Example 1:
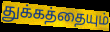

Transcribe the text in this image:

துக்கத்தையும்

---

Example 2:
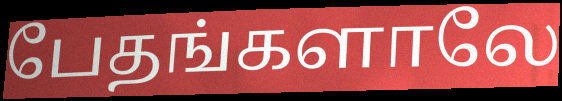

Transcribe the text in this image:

பேதங்களாலே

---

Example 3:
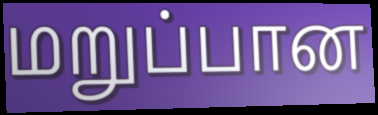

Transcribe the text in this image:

மறுப்பான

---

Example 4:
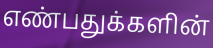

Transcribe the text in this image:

எண்பதுக்களின்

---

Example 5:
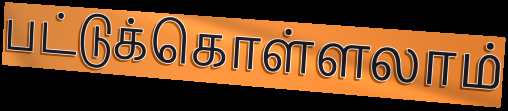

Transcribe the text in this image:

பட்டுக்கொள்ளலாம்